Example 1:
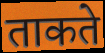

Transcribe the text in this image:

ताकते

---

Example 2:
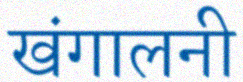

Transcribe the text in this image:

खंगालनी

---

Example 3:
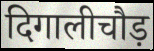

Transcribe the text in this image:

दिगालीचौड़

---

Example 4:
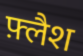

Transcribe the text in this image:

फ़्लैश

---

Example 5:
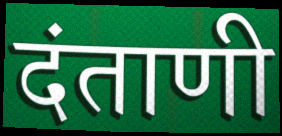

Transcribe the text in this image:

दंताणी